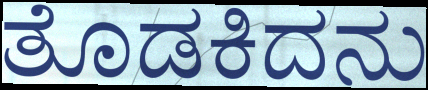
ತೊಡಕಿದನು